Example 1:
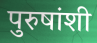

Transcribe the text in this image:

पुरुषांशी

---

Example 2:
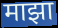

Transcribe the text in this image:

माझा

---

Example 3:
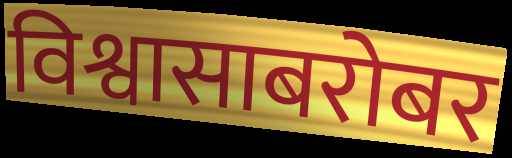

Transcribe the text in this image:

विश्वासाबरोबर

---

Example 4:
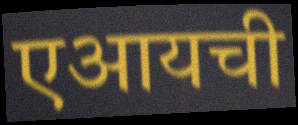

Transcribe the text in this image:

एआयची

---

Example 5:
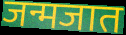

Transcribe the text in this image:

जन्मजात